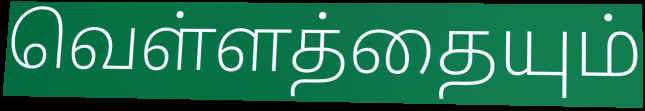
வெள்ளத்தையும்